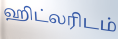
ஹிட்லரிடம்